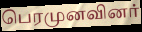
பெரமுனவினர்